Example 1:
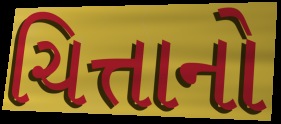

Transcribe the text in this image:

ચિત્તાનો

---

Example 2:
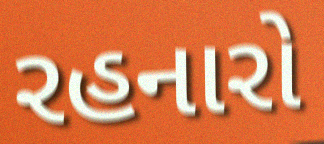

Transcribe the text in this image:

રહનારો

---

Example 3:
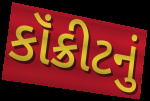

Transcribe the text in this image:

કૉંક્રીટનું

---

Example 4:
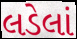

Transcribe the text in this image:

લડેલાં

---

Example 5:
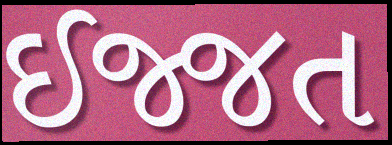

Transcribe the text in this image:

ઈજ્જત